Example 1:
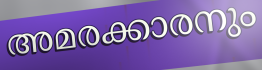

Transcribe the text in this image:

അമരക്കാരനും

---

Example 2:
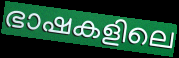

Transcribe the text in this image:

ഭാഷകളിലെ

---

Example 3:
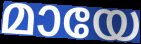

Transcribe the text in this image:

മായേ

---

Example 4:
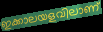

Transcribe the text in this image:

ഇക്കാലയളവിലാണ്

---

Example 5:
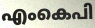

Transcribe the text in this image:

എംകെപി